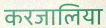
करजालिया